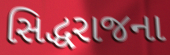
સિદ્ધરાજના